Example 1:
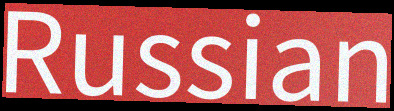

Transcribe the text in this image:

Russian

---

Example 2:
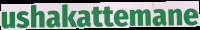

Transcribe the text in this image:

ushakattemane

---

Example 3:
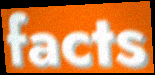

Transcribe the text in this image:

facts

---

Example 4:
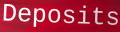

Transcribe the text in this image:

Deposits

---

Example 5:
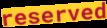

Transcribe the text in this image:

reserved